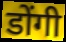
डोंगी